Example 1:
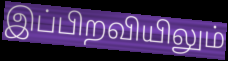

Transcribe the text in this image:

இப்பிறவியிலும்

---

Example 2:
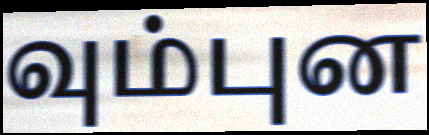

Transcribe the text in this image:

வும்புன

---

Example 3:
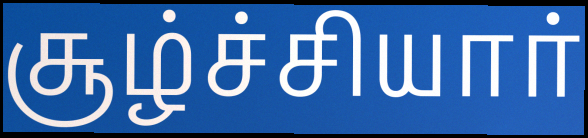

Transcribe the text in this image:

சூழ்ச்சியார்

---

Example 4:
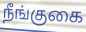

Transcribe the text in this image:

நீங்குகை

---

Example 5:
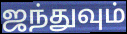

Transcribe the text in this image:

ஜந்துவும்